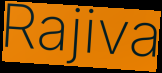
Rajiva